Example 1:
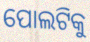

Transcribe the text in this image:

ପୋଲଟିକୁ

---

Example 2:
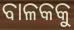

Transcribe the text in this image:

ବାଳକକୁ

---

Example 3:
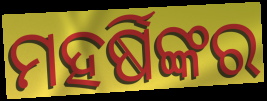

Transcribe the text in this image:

ମହର୍ଷିଙ୍କର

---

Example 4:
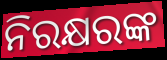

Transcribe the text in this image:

ନିରକ୍ଷରଙ୍କ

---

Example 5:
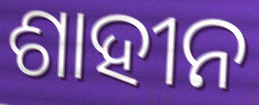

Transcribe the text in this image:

ଶାହୀନ